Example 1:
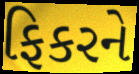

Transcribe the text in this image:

ફિકરને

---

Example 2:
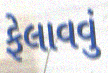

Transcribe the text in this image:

ફેલાવવું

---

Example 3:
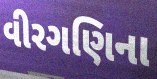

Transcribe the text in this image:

વીરગણિના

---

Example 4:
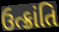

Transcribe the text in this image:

ઉત્ક્રાંતિ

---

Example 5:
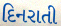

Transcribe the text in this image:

દિનરાતી